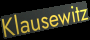
Klausewitz